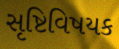
સૃષ્ટિવિષયક